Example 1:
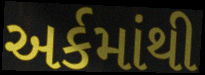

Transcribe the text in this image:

અર્કમાંથી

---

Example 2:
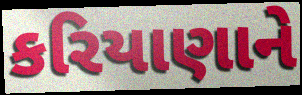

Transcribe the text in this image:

કરિયાણાને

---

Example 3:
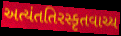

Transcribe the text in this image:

અત્યંતતિરસ્કૃતવાચ્ય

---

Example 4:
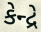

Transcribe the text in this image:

કેન્દ્રે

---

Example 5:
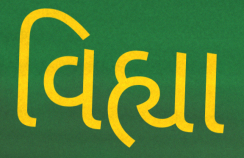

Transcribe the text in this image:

વિહ્યા